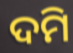
ଦମି